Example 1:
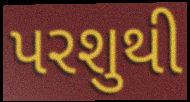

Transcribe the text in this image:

પરશુથી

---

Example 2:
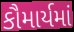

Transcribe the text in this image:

કૌમાર્યમાં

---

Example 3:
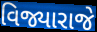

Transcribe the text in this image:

વિજ્યારાજે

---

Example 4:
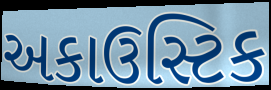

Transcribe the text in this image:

અકાઉસ્ટિક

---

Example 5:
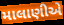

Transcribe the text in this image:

માલાણીએ